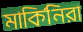
মার্কিনিরা